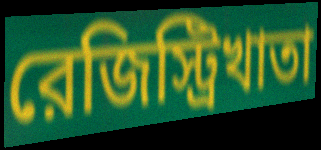
রেজিস্ট্রিখাতা